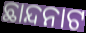
ଛାନ୍ଦନାଟ